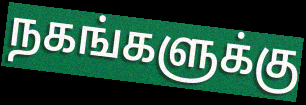
நகங்களுக்கு